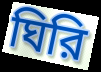
ঘিরি